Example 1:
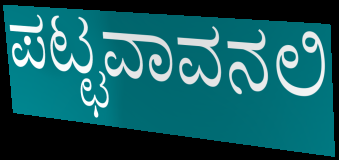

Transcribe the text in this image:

ಪಟ್ಟವಾವನಲಿ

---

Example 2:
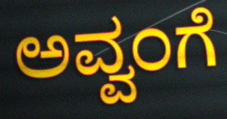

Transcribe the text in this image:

ಅವ್ವಂಗೆ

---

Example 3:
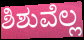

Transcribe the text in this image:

ಶಿಶುವೆಲ್ಲ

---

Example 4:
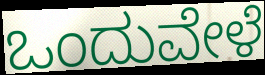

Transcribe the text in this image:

ಒಂದುವೇಳೆ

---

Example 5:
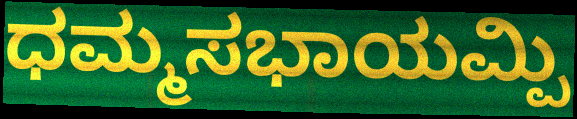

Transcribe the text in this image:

ಧಮ್ಮಸಭಾಯಮ್ಪಿ